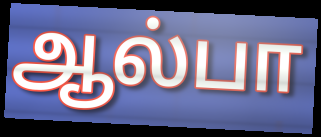
ஆல்பா